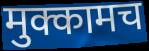
मुक्कामच